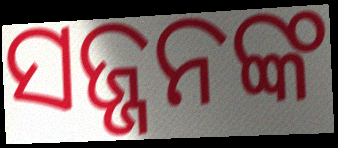
ସଜ୍ଜନଙ୍କ